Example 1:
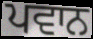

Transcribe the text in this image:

ਪਵਾਨ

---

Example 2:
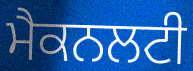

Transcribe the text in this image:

ਮੈਕਨਲਟੀ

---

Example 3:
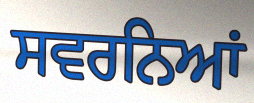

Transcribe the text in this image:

ਸਵਰਨਿਆਂ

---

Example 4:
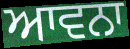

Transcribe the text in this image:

ਆਵਨਾ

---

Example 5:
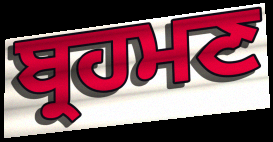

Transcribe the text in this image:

ਬ੍ਰਹਮਣ